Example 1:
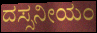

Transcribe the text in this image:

ದಸ್ಸನೀಯಂ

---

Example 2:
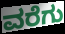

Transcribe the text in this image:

ವರೆಗು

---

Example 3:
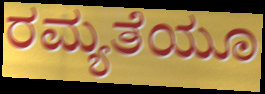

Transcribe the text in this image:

ರಮ್ಯತೆಯೂ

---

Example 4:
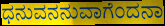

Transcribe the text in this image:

ಧನುವನನುವಾಗೆಂದನಾ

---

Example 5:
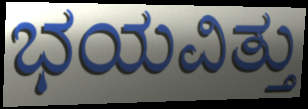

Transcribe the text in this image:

ಭಯವಿತ್ತು